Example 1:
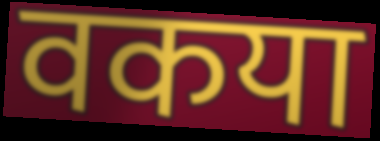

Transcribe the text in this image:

वकया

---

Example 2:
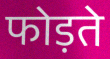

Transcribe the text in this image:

फोड़ते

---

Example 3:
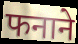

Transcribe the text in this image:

फनाने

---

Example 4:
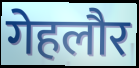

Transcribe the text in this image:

गेहलौर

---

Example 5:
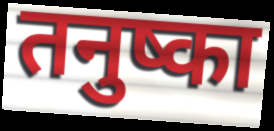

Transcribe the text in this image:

तनुष्का